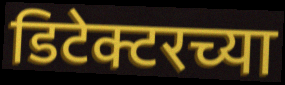
डिटेक्टरच्या